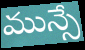
మున్సే